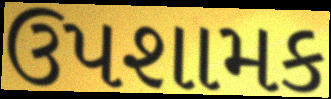
ઉપશામક